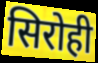
सिरोही